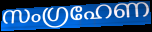
സംഗ്രഹേണ